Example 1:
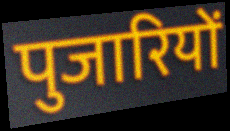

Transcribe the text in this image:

पुजारियों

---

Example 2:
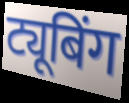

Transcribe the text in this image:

ट्यूबिंग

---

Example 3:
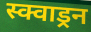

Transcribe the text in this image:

स्क्वाड्रन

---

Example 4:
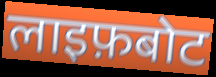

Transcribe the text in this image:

लाइफ़बोट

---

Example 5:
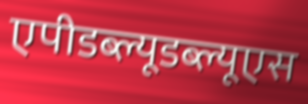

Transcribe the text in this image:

एपीडब्ल्यूडब्ल्यूएस